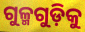
ଗୁଳ୍ମଗୁଡ଼ିକୁ